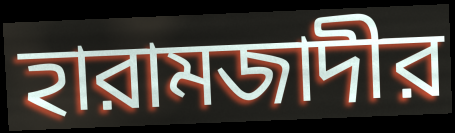
হারামজাদীর